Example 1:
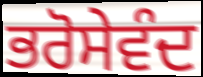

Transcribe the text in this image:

ਭਰੋਸੇਵੰਦ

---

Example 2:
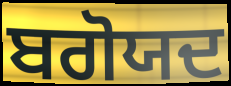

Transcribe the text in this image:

ਬਗੋਯਦ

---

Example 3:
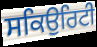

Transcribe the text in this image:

ਸਕਿਉਰਿਟੀ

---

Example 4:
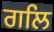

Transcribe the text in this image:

ਗਲਿ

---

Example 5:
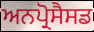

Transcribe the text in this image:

ਅਨਪ੍ਰੋਸੈਸਡ